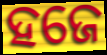
ହଜେ